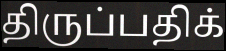
திருப்பதிக்